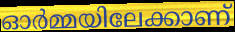
ഓർമ്മയിലേക്കാണ്